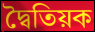
দ্বৈতিয়ক